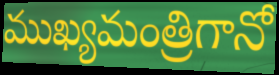
ముఖ్యమంత్రిగానో